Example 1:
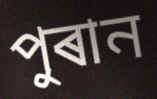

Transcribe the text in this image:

পুৰান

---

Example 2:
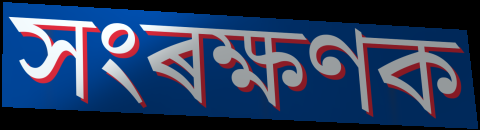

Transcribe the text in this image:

সংৰক্ষণক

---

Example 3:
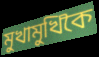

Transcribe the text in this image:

মুখামুখিকৈ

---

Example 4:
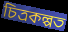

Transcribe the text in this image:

চিত্ৰকল্পত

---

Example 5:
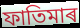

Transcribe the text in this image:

ফাতিমাৰ